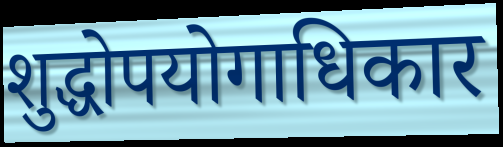
शुद्धोपयोगाधिकार